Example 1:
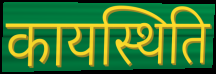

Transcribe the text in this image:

कायस्थिति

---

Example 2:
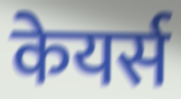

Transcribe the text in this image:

केयर्स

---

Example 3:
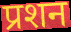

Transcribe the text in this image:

प्रशन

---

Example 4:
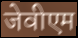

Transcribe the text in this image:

जेवीएम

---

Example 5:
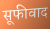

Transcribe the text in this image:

सूफीवाद